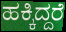
ಹಕ್ಕಿದ್ದರೆ